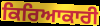
ਕਿਰਿਆਕਾਰੀ